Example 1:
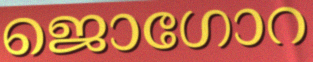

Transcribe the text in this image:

ജൊഗോറ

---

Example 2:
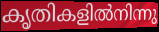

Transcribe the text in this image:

കൃതികളിൽനിന്നു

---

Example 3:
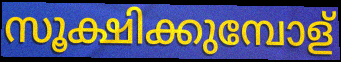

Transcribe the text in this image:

സൂക്ഷിക്കുമ്പോള്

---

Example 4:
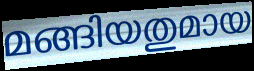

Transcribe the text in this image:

മങ്ങിയതുമായ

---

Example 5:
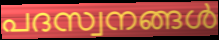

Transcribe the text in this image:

പദസ്വനങ്ങൾ